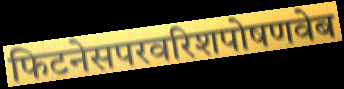
फिटनेसपरवरिशपोषणवेब